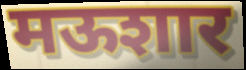
मऊशार